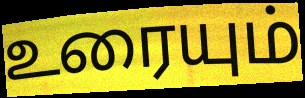
உரையும்